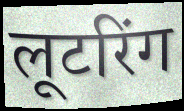
लूटरिंग